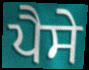
ਪੈਸੇ